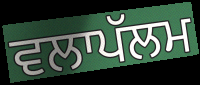
ਵਲਾਪੱਲਮ